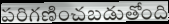
పరిగణించబడుతోంది